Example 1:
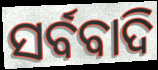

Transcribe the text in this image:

ସର୍ବବାଦି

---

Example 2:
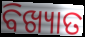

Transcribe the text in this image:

ବିଖ୍ୟାତ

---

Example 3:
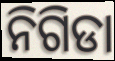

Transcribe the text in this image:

ନିଗିଡା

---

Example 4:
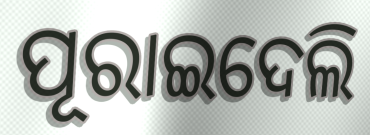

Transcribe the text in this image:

ପୂରାଇଦେଲି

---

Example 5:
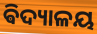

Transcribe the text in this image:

ଵିଦ୍ୟାଳୟ